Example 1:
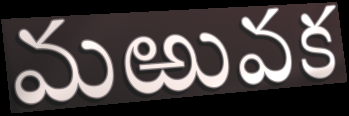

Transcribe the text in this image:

మఱువక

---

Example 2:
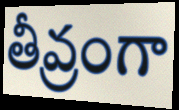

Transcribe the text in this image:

తీవ్రంగా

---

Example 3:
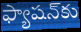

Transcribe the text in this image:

ఫ్యాషన్‌కు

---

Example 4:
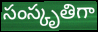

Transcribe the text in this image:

సంస్కృతిగా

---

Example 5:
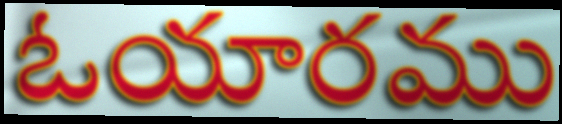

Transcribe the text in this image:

ఓయారము